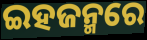
ଇହଜନ୍ମରେ